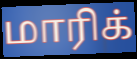
மாரிக்